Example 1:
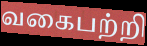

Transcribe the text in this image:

வகைபற்றி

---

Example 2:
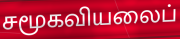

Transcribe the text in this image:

சமூகவியலைப்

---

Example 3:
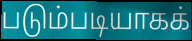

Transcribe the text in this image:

படும்படியாகக்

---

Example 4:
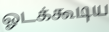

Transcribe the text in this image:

ஓடக்கூடிய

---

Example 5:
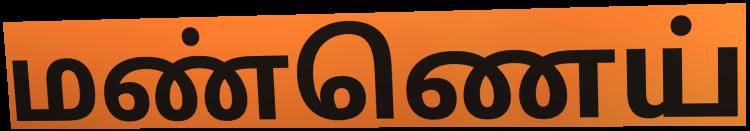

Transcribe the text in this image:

மண்ணெய்